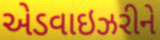
એડવાઇઝરીને